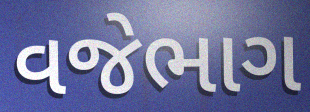
વજેભાગ